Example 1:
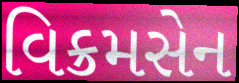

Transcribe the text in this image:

વિક્રમસેન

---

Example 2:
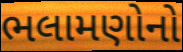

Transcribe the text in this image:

ભલામણોનો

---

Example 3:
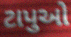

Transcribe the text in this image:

ટાપુઓ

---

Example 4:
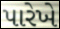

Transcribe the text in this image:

પારેખે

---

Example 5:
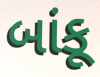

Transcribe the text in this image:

બાંકૂ